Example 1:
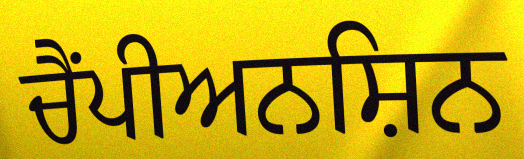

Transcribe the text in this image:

ਚੈਂਪੀਅਨਸ਼ਿਨ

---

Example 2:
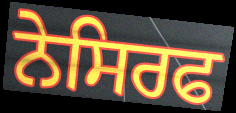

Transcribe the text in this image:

ਨੇਸਿਰਫ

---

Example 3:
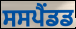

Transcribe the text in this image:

ਸਸਪੈਂਡਡ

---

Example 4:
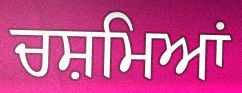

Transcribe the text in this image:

ਚਸ਼ਮਿਆਂ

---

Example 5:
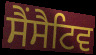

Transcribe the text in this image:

ਸੈਂਸੈਟਿਵ